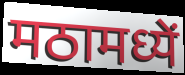
मठामध्यें